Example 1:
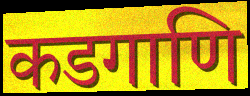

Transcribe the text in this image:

कडगाणि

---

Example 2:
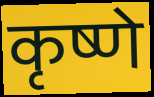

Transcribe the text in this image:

कृष्णे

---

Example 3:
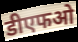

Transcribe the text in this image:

डीएफओ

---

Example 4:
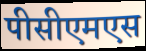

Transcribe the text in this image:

पीसीएमएस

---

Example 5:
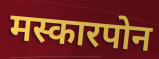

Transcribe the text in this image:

मस्कारपोन